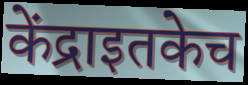
केंद्राइतकेच